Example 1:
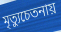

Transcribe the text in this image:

মৃত্যুচেতনায়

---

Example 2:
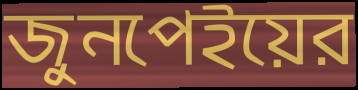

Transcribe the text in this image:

জুনপেইয়ের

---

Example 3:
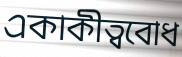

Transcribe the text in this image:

একাকীত্ববোধ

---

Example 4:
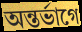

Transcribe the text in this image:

অন্তর্ভাগে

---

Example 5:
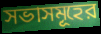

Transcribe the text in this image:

সভাসমূহের